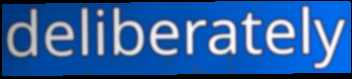
deliberately